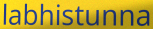
labhistunna